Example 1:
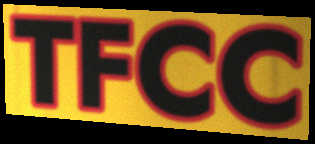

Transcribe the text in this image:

TFCC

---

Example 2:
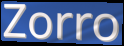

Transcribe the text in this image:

Zorro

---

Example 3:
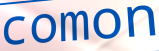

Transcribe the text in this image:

comon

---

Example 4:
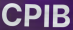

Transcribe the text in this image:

CPIB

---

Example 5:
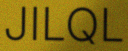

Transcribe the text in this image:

JILQL